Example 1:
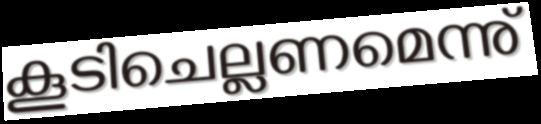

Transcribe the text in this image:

കൂടിചെല്ലണമെന്നു്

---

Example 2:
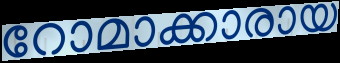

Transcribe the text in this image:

റോമാക്കാരായ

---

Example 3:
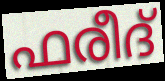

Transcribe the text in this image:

ഫരീദ്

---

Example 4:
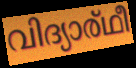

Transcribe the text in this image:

വിദ്യാര്ഥീ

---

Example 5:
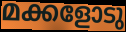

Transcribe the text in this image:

മക്കളോടു